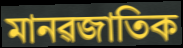
মানৱজাতিক